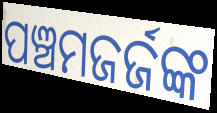
ପଞ୍ଚମଜର୍ଜଙ୍କ